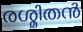
രശ്മിതൻ